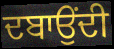
ਦਬਾਉਂਦੀ